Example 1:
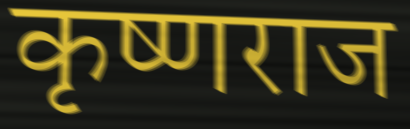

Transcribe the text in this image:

कृष्णराज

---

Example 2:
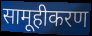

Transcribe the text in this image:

सामूहीकरण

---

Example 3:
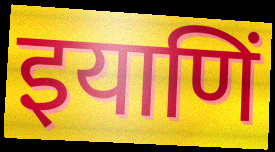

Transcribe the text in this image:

इयाणिं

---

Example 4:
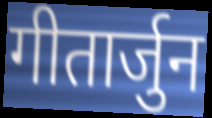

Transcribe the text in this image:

गीतार्जुन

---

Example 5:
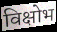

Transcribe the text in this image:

विक्षोभ